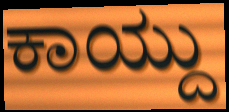
ಕಾಯ್ದು